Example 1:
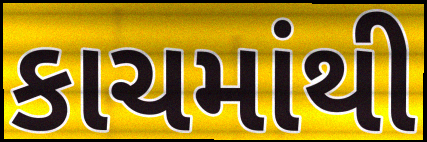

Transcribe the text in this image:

કાચમાંથી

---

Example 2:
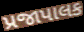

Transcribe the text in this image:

પ્રજાપાલક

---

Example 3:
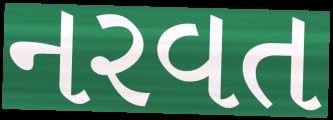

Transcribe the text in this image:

નરવત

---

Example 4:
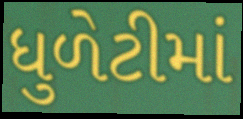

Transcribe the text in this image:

ધુળેટીમાં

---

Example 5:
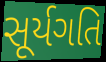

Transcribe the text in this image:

સૂર્યગતિ